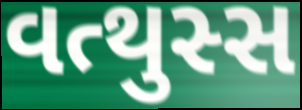
વત્થુસ્સ